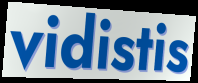
vidistis